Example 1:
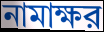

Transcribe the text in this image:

নামাক্ষর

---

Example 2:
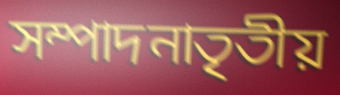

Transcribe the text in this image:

সম্পাদনাতৃতীয়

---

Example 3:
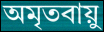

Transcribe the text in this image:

অমৃতবায়ু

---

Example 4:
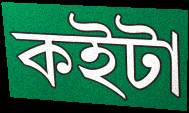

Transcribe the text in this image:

কইটা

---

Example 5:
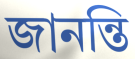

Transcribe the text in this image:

জানন্তি